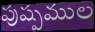
పుష్పముల